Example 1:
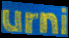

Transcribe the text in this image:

urni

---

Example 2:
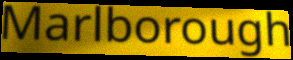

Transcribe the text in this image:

Marlborough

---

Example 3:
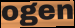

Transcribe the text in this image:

ogen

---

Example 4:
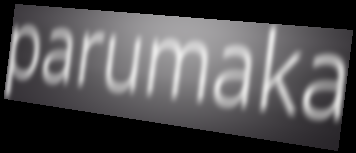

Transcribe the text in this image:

parumaka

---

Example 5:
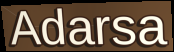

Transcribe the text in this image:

Adarsa